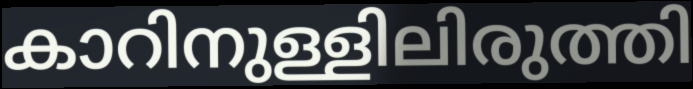
കാറിനുള്ളിലിരുത്തി